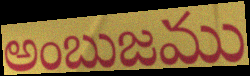
అంబుజము